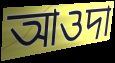
আওদা